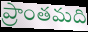
ప్రాంతమది